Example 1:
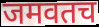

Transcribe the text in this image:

जमवतच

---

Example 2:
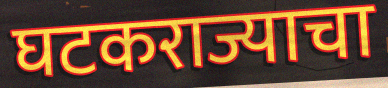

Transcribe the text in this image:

घटकराज्याचा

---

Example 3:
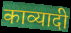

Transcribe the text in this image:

काव्यादी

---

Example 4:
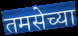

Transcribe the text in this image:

तमसेच्या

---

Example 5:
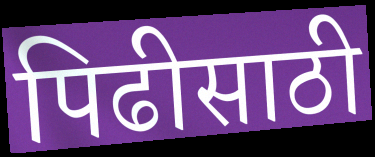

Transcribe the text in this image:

पिढीसाठी